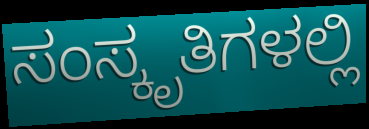
ಸಂಸ್ಕೃತಿಗಳಲ್ಲಿ